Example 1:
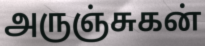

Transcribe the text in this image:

அருஞ்சுகன்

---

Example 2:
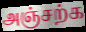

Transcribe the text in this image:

அஞ்சற்க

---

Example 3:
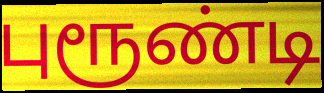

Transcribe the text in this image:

புரூண்டி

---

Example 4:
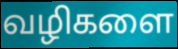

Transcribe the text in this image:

வழிகளை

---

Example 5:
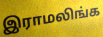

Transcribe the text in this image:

இராமலிங்க